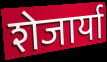
शेजार्या